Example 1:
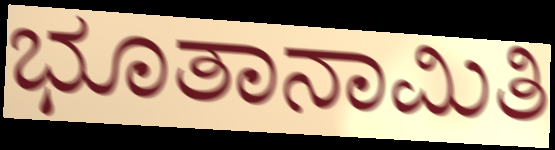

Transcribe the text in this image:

ಭೂತಾನಾಮಿತಿ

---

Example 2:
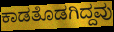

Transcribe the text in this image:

ಕಾಡತೊಡಗಿದ್ದವು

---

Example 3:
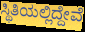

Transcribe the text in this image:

ಸ್ಥಿತಿಯಲ್ಲಿದ್ದೇವೆ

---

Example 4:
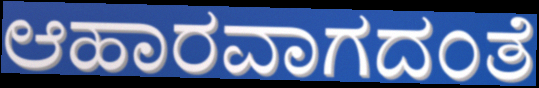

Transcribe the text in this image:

ಆಹಾರವಾಗದಂತೆ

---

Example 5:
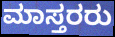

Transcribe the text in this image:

ಮಾಸ್ತರರು